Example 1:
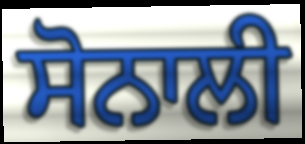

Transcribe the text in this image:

ਸੋਨਾਲੀ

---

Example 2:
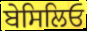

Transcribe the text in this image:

ਬੇਸਿਲਿਓ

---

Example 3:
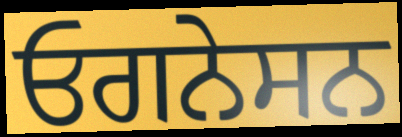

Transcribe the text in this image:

ਓਗਨੇਸਨ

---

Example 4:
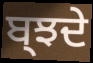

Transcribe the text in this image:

ਬ੍ਝਦੇ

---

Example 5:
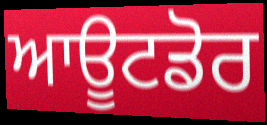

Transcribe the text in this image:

ਆਊਟਡੋਰ